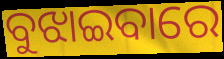
ବୁଝାଇବାରେ